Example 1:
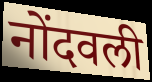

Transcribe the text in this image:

नोंदवली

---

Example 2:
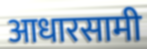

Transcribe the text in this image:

आधारसामी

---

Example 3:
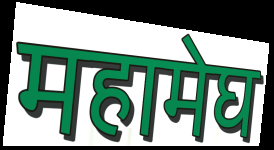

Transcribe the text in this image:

महामेघ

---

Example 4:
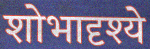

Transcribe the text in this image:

शोभादृश्ये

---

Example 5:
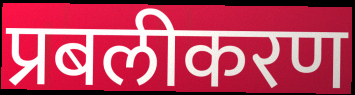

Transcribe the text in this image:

प्रबलीकरण